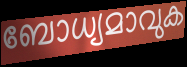
ബോധ്യമാവുക